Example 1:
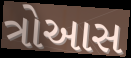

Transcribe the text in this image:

ત્રોઆસ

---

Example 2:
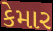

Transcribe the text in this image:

કેમાર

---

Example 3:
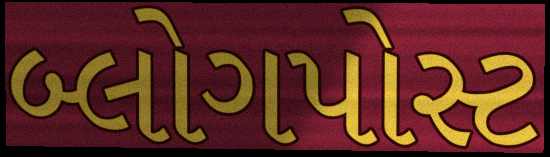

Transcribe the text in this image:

બ્લોગપોસ્ટ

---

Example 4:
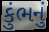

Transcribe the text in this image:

કુંભનું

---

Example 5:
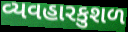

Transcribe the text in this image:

વ્યવહારકુશળ